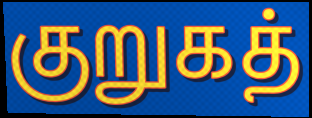
குறுகத்